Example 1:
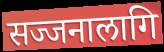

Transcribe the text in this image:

सज्जनालागि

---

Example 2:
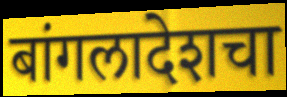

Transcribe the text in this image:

बांगलादेशचा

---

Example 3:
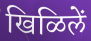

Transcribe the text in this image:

खिळिलें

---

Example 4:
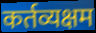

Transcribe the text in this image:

कर्तव्यक्षम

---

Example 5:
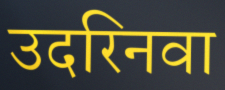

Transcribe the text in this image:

उदरिनवा